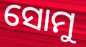
ସୋମୁ